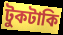
টুকটাকি